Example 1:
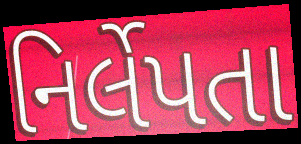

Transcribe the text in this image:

નિર્લેપતા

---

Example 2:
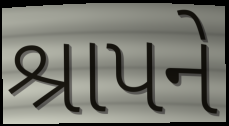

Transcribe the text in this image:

શ્રાપને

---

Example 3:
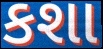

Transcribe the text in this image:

કશા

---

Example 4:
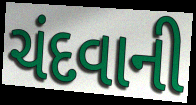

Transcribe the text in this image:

ચંદવાની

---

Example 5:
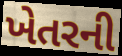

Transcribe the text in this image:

ખેતરની